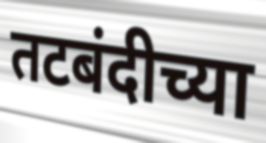
तटबंदीच्या